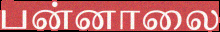
பன்னாலை